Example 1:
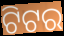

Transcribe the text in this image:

ଟିଟର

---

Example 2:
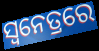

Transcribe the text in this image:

ସ୍ୱନେତ୍ରରେ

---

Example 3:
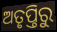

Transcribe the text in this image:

ଅତୃପ୍ତିରୁ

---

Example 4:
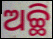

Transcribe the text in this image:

ଅଚ୍ଛି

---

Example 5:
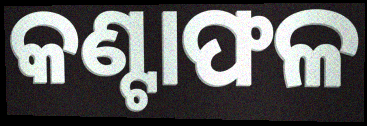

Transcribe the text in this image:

କଣ୍ଟାଫଳ